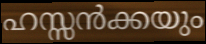
ഹസ്സൻക്കയും